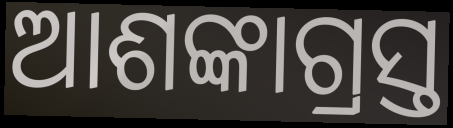
ଆଶଙ୍କାଗ୍ରସ୍ତ